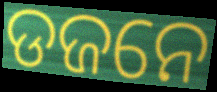
ଡଜନେ